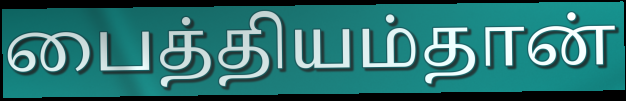
பைத்தியம்தான்